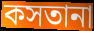
কসতানা